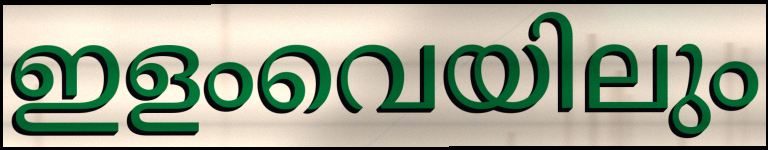
ഇളംവെയിലും